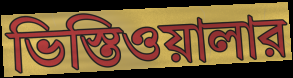
ভিস্তিওয়ালার